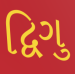
દ્વિગુ